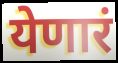
येणारं